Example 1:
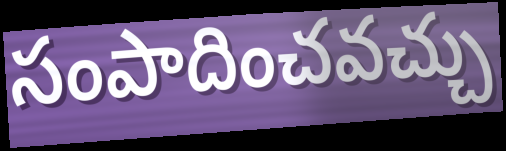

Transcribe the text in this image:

సంపాదించవచ్చు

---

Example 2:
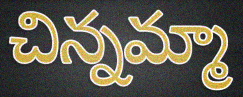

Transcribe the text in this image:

చిన్నమ్మా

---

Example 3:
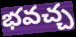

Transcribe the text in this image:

భవచ్చ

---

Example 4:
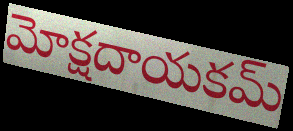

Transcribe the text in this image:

మోక్షదాయకమ్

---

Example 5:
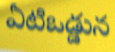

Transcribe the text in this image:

ఏటిఒడ్డున